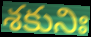
శకునిః